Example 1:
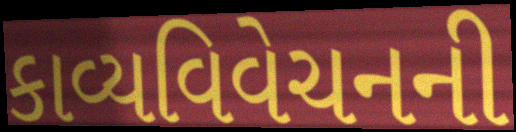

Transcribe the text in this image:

કાવ્યવિવેચનની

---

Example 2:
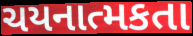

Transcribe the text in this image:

ચયનાત્મકતા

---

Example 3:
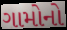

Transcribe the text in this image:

ગામોનો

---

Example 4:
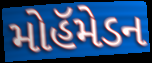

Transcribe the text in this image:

મોહૅમેડન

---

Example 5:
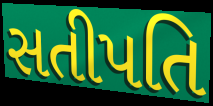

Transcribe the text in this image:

સતીપતિ